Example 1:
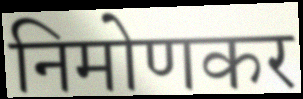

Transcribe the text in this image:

निमोणकर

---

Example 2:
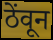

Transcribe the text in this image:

ठेंवून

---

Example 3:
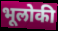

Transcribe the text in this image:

भूलोकी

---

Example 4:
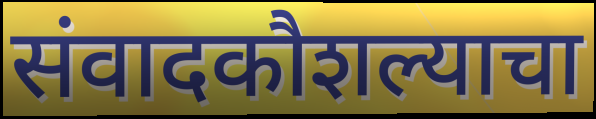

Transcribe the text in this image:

संवादकौशल्याचा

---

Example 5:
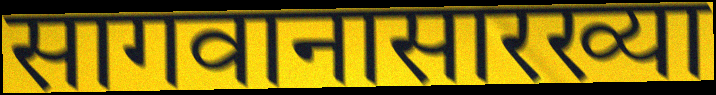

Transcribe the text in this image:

सागवानासारख्या